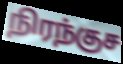
நிரந்குச